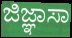
ಜಿಜ್ಞಾಸಾ